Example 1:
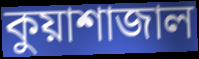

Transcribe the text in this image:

কুয়াশাজাল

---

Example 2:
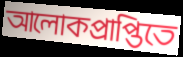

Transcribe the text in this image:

আলোকপ্রাপ্তিতে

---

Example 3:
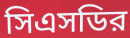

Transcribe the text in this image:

সিএসডির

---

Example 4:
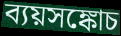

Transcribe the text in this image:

ব্যয়সঙ্কোচ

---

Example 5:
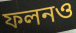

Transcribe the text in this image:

ফলনও